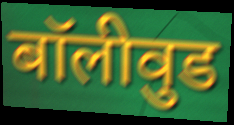
बॉलीवुड